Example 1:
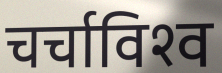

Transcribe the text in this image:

चर्चाविश्व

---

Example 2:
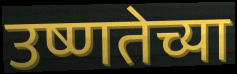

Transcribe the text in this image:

उष्णतेच्या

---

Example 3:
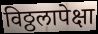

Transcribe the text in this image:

विठ्ठलापेक्षा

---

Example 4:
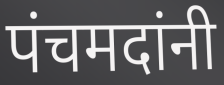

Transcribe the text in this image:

पंचमदांनी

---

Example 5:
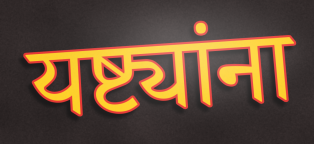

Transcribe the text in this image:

यष्ट्यांना